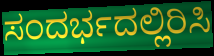
ಸಂದರ್ಭದಲ್ಲಿರಿಸಿ